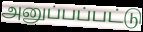
அனுப்பப்பட்டு